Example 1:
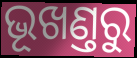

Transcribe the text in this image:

ଭୂଖଣ୍ତରୁ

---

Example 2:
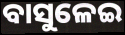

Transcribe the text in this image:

ବାସୁଳେଇ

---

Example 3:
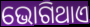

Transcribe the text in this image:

ଭୋଗିଥାଏ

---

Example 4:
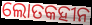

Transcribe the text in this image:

ଲୋତକହୀନ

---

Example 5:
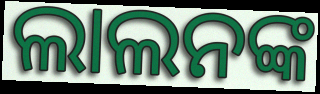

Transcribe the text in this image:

ଲାଲନଙ୍କ